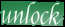
unlock